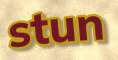
stun